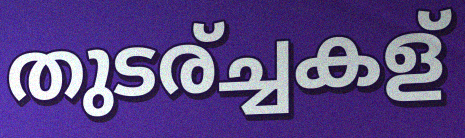
തുടര്ച്ചകള്